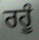
ਰਹੂੰ